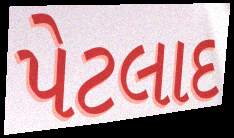
પેટલાદ